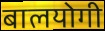
बालयोगी